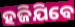
ହଜିଯିବେ